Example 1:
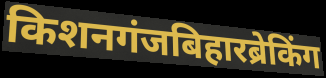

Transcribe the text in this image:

किशनगंजबिहारब्रेकिंग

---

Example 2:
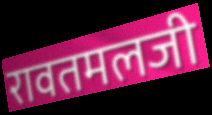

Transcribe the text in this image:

रावतमलजी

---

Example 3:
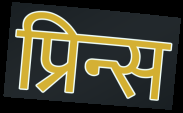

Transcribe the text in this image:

प्रिन्स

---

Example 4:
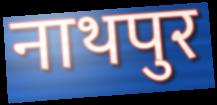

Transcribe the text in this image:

नाथपुर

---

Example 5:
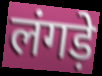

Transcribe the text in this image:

लंगड़े